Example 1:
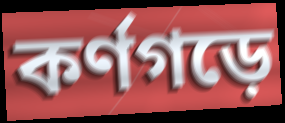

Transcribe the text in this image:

কর্ণগড়ে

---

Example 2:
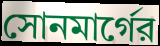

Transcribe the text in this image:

সোনমার্গের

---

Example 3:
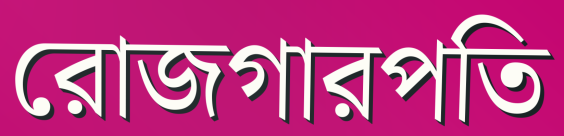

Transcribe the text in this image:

রোজগারপতি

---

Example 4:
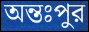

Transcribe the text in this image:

অন্তঃপুর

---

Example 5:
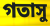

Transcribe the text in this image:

গতাসু